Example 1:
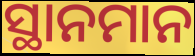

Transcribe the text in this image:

ସ୍ଥାନମାନ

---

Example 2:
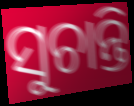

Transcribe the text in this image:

ସୁଚାନ୍ତି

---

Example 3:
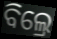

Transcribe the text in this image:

ବିଲ୍ରେ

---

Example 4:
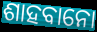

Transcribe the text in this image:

ଶାହବାନୋ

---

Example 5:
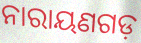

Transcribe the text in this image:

ନାରାୟଣଗଡ଼